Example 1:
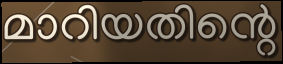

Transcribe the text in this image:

മാറിയതിന്റെ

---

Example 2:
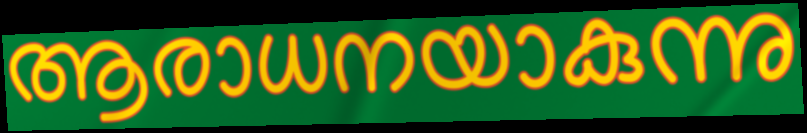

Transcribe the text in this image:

ആരാധനയാകുന്നു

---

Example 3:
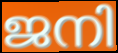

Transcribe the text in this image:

ജനി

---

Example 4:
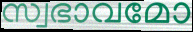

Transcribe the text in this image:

സ്വഭാവമോ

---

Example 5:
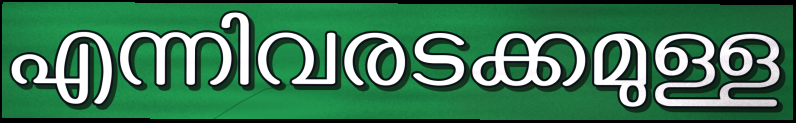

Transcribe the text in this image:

എന്നിവരടക്കമുള്ള